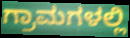
ಗ್ರಾಮಗಳಲ್ಲಿ